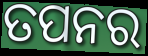
ତପନର